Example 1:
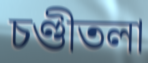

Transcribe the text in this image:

চণ্ডীতলা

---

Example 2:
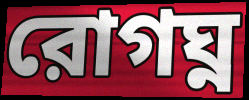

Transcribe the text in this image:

রোগঘ্ন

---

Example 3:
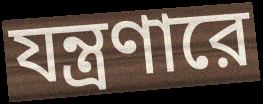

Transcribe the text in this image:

যন্ত্রণারে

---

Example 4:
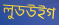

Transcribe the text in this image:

লুডউইগ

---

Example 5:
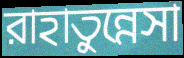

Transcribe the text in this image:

রাহাতুন্নেসা